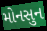
મોનસુન